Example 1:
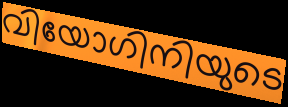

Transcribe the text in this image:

വിയോഗിനിയുടെ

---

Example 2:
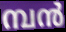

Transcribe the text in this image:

മ്പൻ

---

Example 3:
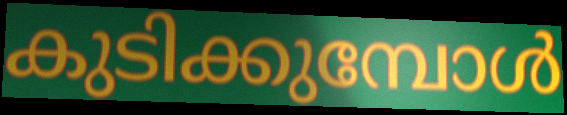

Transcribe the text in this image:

കുടിക്കുമ്പോൾ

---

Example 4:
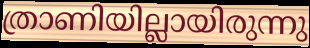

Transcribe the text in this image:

ത്രാണിയില്ലായിരുന്നു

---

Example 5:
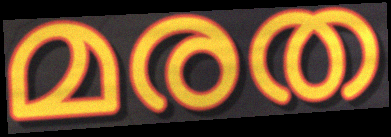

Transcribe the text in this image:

മരത